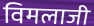
विमलाजी